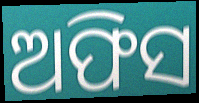
ଅଫିସ